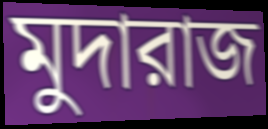
মুদারাজ